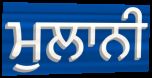
ਮੁਲਾਨੀ